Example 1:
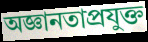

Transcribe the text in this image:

অজ্ঞানতাপ্রযুক্ত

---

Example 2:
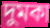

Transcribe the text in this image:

দুমকা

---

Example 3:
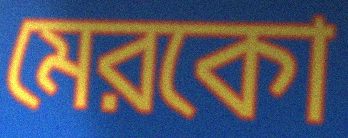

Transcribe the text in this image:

মেরকো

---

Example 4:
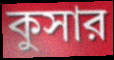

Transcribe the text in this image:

কুসার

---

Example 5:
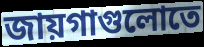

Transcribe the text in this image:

জায়গাগুলোতে